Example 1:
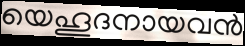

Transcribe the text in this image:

യെഹൂദനായവൻ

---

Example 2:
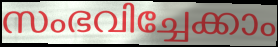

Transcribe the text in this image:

സംഭവിച്ചേക്കാം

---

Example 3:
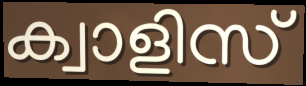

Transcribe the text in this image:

ക്വാളിസ്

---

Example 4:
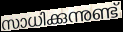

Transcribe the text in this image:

സാധിക്കുന്നുണ്ട്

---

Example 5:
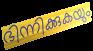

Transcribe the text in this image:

ഭിന്നിക്കുകയും